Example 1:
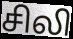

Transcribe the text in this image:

சிலி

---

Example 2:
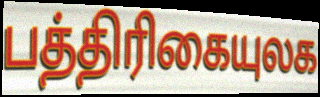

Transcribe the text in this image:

பத்திரிகையுலக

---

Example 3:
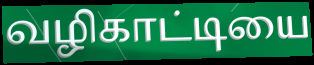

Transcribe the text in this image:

வழிகாட்டியை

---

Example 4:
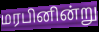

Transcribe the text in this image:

மரபினின்று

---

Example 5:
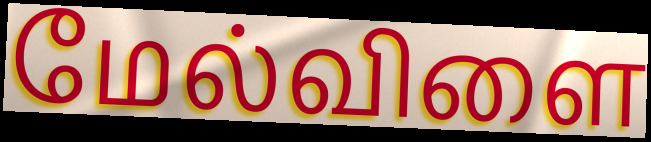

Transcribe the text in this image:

மேல்விளை